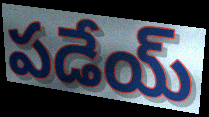
పడేయ్